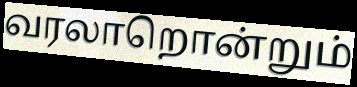
வரலாறொன்றும்